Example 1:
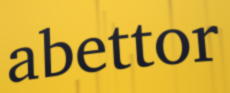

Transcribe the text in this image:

abettor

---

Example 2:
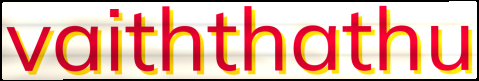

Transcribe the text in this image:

vaiththathu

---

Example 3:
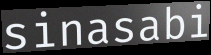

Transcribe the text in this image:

sinasabi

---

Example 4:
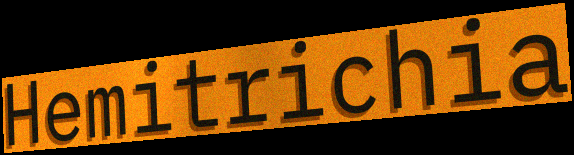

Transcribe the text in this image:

Hemitrichia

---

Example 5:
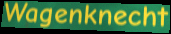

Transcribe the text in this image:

Wagenknecht